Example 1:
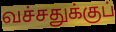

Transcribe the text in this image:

வச்சதுக்குப்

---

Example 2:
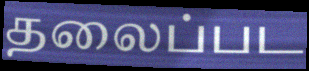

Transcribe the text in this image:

தலைப்பட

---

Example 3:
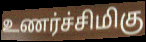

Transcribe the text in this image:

உணர்ச்சிமிகு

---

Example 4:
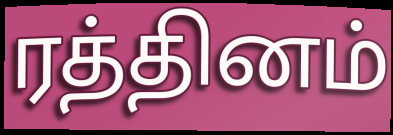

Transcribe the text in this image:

ரத்தினம்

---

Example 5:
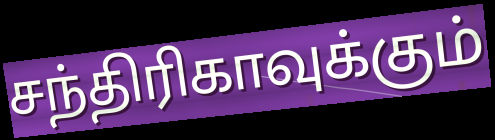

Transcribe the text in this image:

சந்திரிகாவுக்கும்